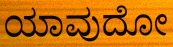
ಯಾವುದೋ